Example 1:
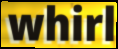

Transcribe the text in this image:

whirl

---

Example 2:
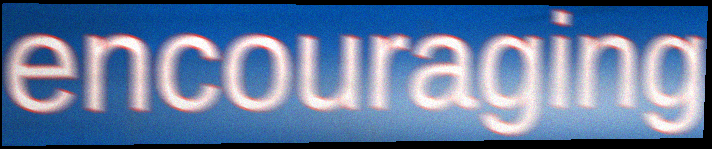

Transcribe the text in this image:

encouraging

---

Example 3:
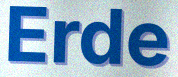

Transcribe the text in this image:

Erde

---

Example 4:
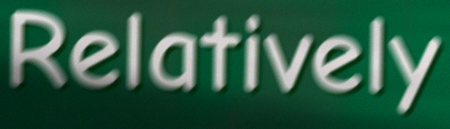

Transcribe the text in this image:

Relatively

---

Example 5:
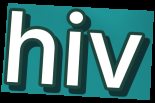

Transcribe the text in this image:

hiv